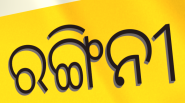
ରଙ୍ଗିନୀ